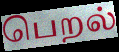
பெறல்